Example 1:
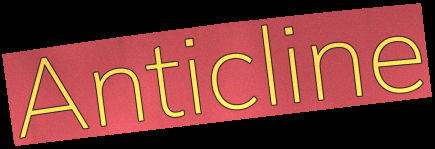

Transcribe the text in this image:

Anticline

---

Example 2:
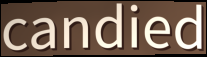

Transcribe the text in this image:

candied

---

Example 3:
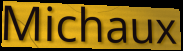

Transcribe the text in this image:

Michaux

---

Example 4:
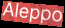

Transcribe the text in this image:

Aleppo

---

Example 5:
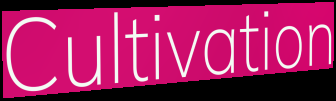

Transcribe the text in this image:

Cultivation